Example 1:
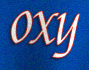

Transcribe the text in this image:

oxy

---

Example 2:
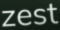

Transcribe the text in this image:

zest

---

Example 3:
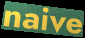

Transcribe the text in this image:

naive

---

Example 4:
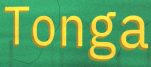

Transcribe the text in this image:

Tonga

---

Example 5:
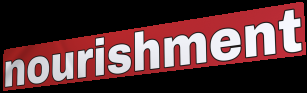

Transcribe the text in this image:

nourishment